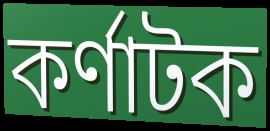
কৰ্ণাটক